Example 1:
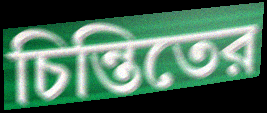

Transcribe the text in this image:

চিন্তিতের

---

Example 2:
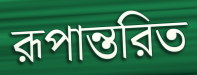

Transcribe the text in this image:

রূপান্তরিত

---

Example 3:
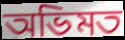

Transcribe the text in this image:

অভিমত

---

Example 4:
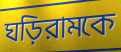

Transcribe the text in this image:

ঘড়িরামকে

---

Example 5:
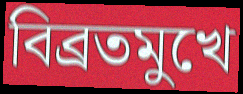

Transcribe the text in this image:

বিব্রতমুখে